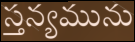
స్తన్యమును